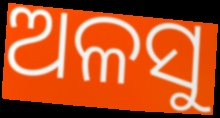
ଅଳସୁ